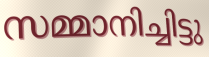
സമ്മാനിച്ചിട്ടു